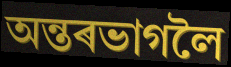
অন্তৰভাগলৈ